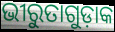
ଭୀରୁତାଗୁଡ଼ାକ